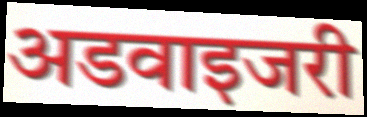
अडवाइजरी